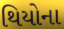
થિયોના